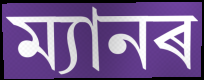
ম্যানৰ